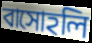
বাসোহলি